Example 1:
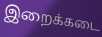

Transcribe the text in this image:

இறைக்கடை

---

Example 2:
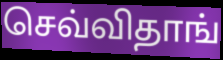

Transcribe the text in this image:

செவ்விதாங்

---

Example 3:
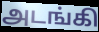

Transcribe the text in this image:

அடங்கி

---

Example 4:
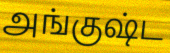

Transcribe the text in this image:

அங்குஷ்ட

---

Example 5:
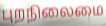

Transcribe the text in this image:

புறநிலைமை